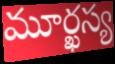
మూర్ఖస్య